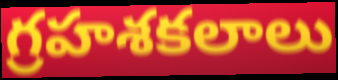
గ్రహశకలాలు